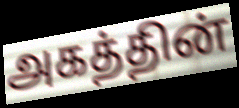
அகத்தின்